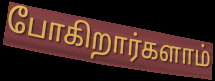
போகிறார்களாம்